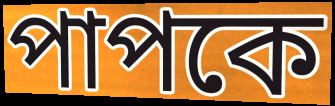
পাপকে